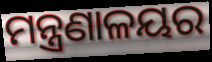
ମନ୍ତ୍ରଣାଳୟର